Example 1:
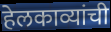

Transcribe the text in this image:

हेलकाव्यांची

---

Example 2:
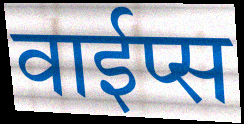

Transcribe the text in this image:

वाईप्स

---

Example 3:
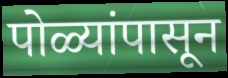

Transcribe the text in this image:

पोळ्यांपासून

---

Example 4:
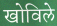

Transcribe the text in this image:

खोविले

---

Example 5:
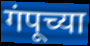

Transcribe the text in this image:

गंपूच्या